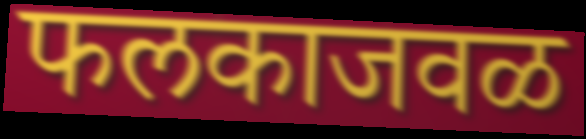
फलकाजवळ